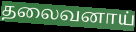
தலைவனாய்